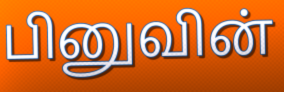
பினுவின்